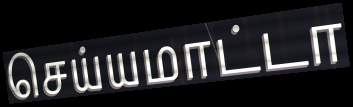
செய்யமாட்டா